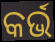
କର୍ଭ